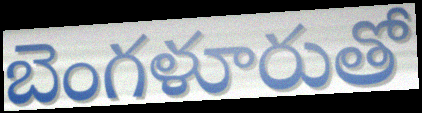
బెంగళూరుతో